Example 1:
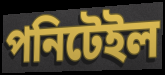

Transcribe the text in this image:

পনিটেইল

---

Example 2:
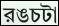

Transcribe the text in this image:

রঙচটা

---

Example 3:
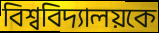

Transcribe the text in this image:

বিশ্ববিদ্যালয়কে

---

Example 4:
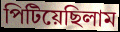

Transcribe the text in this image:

পিটিয়েছিলাম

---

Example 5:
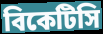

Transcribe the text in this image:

বিকেটিসি